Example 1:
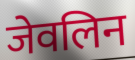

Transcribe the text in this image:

जेवलिन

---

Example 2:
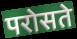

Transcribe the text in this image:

परोसते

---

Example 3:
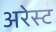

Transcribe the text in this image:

अरेस्ट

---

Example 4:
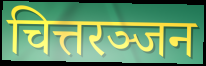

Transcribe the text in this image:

चित्तरञ्जन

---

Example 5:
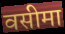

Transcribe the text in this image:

वसीमा